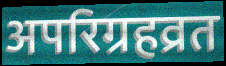
अपरिग्रहव्रत